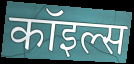
कॉइल्स